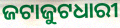
ଜଟାଜୁଟଧାରୀ